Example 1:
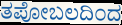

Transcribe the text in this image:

ತಪೋಬಲದಿಂದ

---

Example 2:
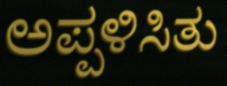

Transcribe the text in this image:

ಅಪ್ಪಳಿಸಿತು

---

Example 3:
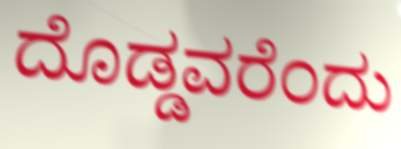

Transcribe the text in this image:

ದೊಡ್ಡವರೆಂದು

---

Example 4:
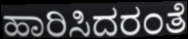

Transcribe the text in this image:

ಹಾರಿಸಿದರಂತೆ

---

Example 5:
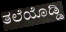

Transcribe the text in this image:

ತಲೆಯೊಡ್ಡಿ